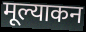
मूल्याकन